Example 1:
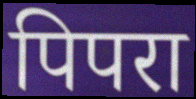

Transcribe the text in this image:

पिपरा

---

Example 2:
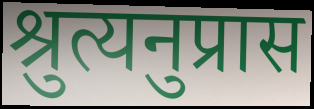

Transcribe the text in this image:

श्रुत्यनुप्रास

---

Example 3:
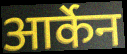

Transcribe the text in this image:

आर्केन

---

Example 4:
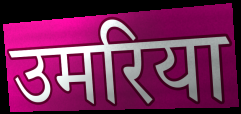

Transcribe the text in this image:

उमरिया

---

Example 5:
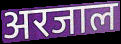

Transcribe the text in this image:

अरजाल